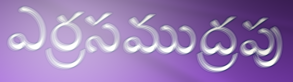
ఎర్రసముద్రపు